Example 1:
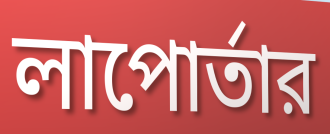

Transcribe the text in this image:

লাপোর্তার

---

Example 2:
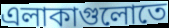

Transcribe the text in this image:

এলাকাগুলোতে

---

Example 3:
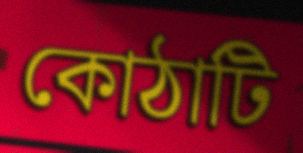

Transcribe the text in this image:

কোঠাটি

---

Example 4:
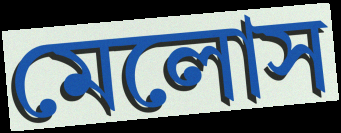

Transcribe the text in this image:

মেলোস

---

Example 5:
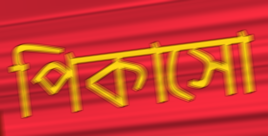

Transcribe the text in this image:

পিকাসো